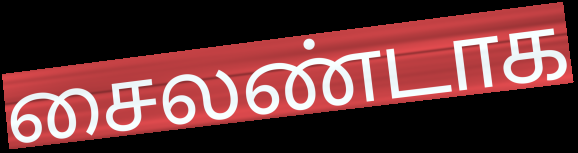
சைலண்டாக